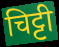
चिट्टी